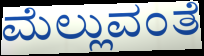
ಮೆಲ್ಲುವಂತೆ